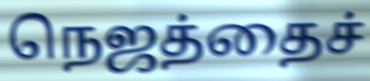
நெஜத்தைச்